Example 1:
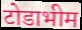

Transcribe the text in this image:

टोडाभीम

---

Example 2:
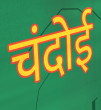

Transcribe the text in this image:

चंदोई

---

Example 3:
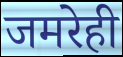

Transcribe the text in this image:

जमरेही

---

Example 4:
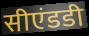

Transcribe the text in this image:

सीएंडडी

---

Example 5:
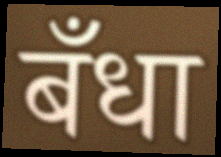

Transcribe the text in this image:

बँधा